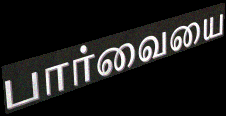
பார்வையை